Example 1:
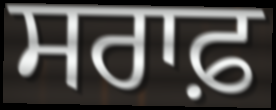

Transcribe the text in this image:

ਸਰਾਫ਼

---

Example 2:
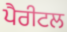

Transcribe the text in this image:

ਪੈਰੀਟਲ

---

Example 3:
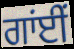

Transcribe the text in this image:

ਗਾਂਈਂ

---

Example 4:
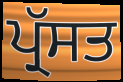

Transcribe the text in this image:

ਪ੍ਰੱਸਤ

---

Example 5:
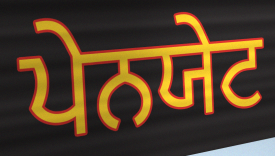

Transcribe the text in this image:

ਪੇਨਯੇਟ